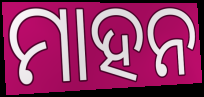
ମାହନ